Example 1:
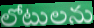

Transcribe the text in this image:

లోటులను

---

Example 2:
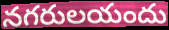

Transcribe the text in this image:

నగరులయందు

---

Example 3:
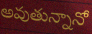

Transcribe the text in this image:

అవుతున్నానో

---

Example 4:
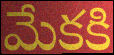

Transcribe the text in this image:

మేకకి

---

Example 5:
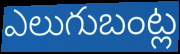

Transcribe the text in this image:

ఎలుగుబంట్ల